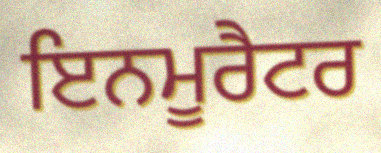
ਇਨਮੂਰੈਟਰ